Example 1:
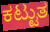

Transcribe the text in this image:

ಕಟ್ಟುತ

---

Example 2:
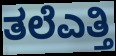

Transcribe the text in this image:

ತಲೆಎತ್ತಿ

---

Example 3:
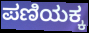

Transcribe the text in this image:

ಪಣಿಯಕ್ಕ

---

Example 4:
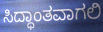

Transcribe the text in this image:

ಸಿದ್ಧಾಂತವಾಗಲಿ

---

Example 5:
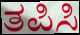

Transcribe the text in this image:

ತಪಿಸಿ